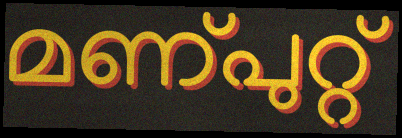
മണ്പുറ്റ്